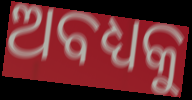
ଅବଧ୍ୟକୁ